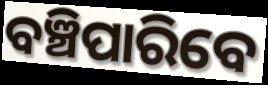
ବଞ୍ଚିପାରିବେ